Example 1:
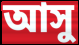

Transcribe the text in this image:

আসু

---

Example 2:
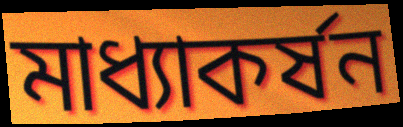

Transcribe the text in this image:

মাধ্যাকর্ষন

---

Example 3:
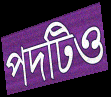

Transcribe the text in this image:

পদটিও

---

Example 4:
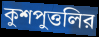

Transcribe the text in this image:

কুশপুত্তলির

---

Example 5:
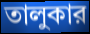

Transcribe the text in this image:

তালুকার